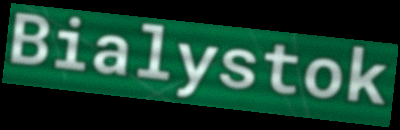
Bialystok